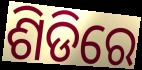
ଶିଡିରେ